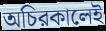
অচিরকালেই